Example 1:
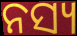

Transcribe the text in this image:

ନସ୍ୟ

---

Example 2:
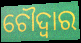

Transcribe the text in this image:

ଚୌଦ୍ଵାର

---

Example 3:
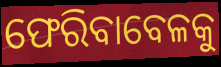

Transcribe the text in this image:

ଫେରିବାବେଳକୁ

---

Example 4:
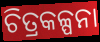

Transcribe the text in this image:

ଚିତ୍ରକଳ୍ପନା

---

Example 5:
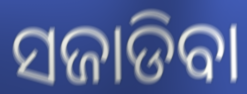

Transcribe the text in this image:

ସଜାଡିବା